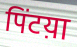
पिंटय़ा